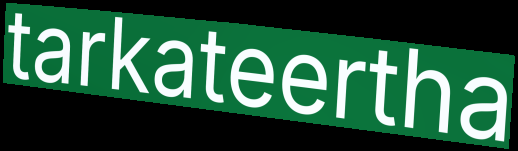
tarkateertha